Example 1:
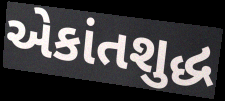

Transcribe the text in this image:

એકાંતશુદ્ધ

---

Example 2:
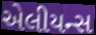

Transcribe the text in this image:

એલીયન્સ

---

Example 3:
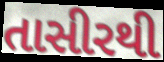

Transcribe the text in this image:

તાસીરથી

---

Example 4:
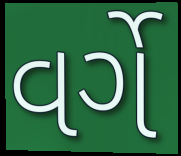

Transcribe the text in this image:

વર્ગે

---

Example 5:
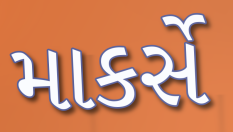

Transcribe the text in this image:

માકર્સે